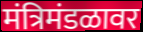
मंत्रिमंडळावर